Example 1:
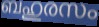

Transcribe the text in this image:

ബഹുരസം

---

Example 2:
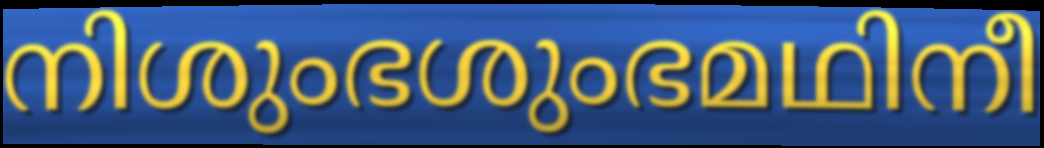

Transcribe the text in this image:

നിശുംഭശുംഭമഥിനീ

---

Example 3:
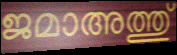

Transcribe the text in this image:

ജമാഅത്തു്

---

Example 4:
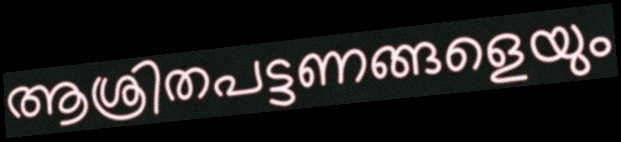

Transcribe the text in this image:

ആശ്രിതപട്ടണങ്ങളെയും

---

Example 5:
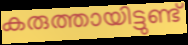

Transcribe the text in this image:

കരുത്തായിട്ടുണ്ട്